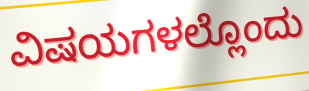
ವಿಷಯಗಳಲ್ಲೊಂದು